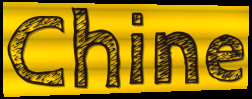
Chine